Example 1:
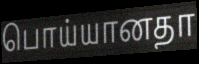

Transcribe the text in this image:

பொய்யானதா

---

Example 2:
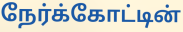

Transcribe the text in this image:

நேர்க்கோட்டின்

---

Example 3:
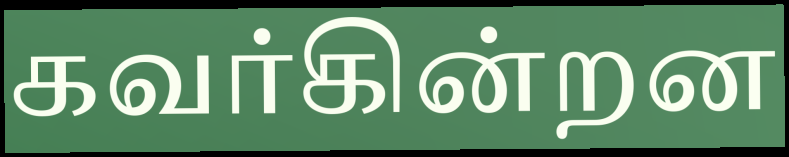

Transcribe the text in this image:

கவர்கின்றன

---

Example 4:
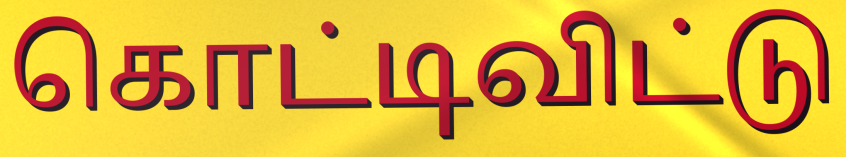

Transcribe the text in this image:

கொட்டிவிட்டு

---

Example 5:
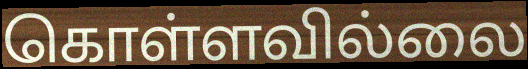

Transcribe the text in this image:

கொள்ளவில்லை